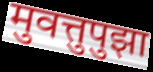
मुवत्तुपुझा